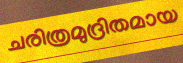
ചരിത്രമുദ്രിതമായ